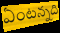
ఏంటన్నది